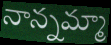
నాన్నమ్మా